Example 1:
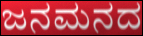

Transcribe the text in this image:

ಜನಮನದ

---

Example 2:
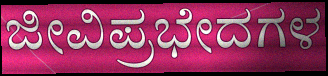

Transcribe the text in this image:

ಜೀವಿಪ್ರಭೇದಗಳ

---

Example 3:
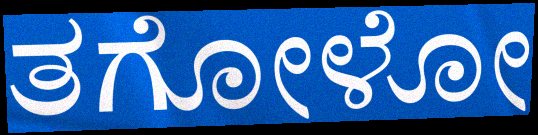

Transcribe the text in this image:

ತಗೋಳೋ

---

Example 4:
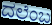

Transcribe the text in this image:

ದಲೆಂಬ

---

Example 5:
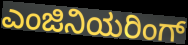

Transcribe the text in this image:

ಎಂಜಿನಿಯರಿಂಗ್